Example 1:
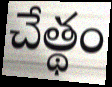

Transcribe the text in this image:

చేత్థం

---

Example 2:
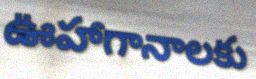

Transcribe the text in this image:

ఊహాగానాలకు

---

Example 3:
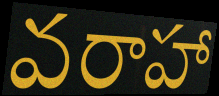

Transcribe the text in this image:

వరాహా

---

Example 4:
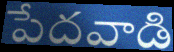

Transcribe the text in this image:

పేదవాడి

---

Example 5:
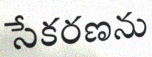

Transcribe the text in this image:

సేకరణను